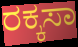
ರಕ್ಕಸಾ